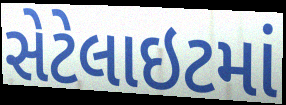
સેટેલાઇટમાં